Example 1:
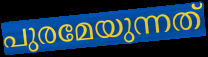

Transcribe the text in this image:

പുരമേയുന്നത്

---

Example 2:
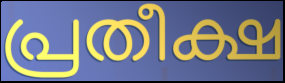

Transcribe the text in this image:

പ്രതീക്ഷ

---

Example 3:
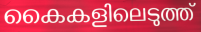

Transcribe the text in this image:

കൈകളിലെടുത്ത്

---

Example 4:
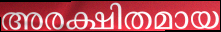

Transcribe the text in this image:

അരക്ഷിതമായ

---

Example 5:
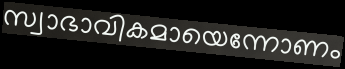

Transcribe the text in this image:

സ്വാഭാവികമായെന്നോണം